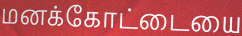
மனக்கோட்டையை